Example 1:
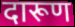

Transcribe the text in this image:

दारूण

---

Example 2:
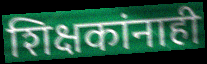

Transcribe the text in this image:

शिक्षकांनाही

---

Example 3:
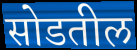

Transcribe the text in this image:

सोडतील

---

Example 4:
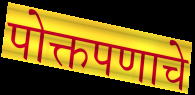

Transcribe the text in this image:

पोक्तपणाचे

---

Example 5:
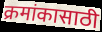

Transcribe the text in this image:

क्रमांकासाठी